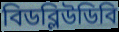
বিডব্লিউডিবি